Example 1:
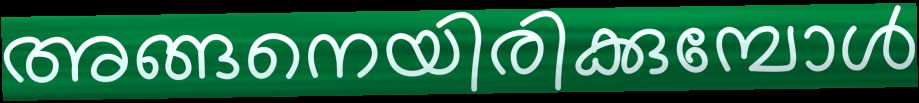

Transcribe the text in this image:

അങ്ങനെയിരിക്കുമ്പോൾ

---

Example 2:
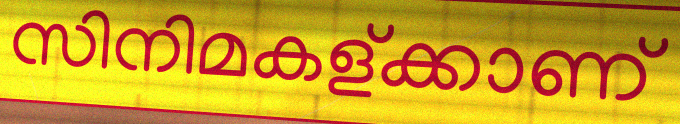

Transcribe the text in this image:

സിനിമകള്ക്കാണ്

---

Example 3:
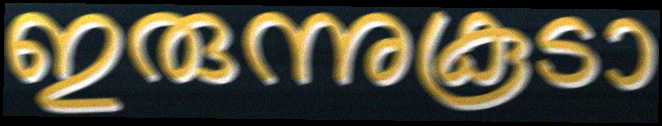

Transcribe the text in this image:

ഇരുന്നുകൂടാ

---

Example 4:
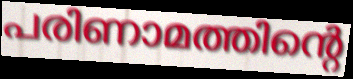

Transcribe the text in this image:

പരിണാമത്തിന്റെ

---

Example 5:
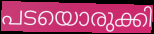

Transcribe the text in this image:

പടയൊരുക്കി